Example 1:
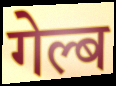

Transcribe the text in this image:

गेल्ब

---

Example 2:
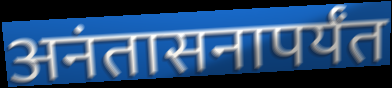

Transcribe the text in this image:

अनंतासनापर्यंत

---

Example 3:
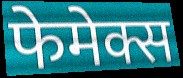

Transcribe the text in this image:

फेमेक्स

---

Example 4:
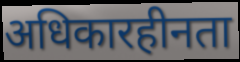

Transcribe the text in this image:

अधिकारहीनता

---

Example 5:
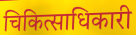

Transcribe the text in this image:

चिकित्साधिकारी